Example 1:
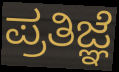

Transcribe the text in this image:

ಪ್ರತಿಜ್ಞೆ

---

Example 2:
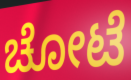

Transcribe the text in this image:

ಚೋಟೆ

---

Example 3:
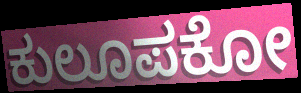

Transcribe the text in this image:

ಕುಲೂಪಕೋ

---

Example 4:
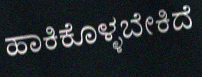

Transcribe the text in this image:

ಹಾಕಿಕೊಳ್ಳಬೇಕಿದೆ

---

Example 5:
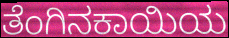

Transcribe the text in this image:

ತೆಂಗಿನಕಾಯಿಯ